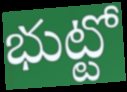
భుట్టో